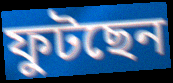
ফুটছেন